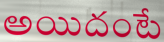
అయిదంటే